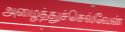
அழைத்துச்செல்வேன்